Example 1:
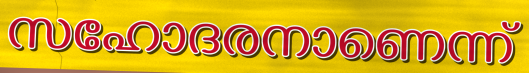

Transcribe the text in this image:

സഹോദരനാണെന്ന്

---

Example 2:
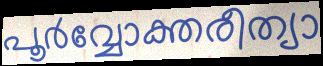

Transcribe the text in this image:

പൂർവ്വോക്തരീത്യാ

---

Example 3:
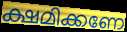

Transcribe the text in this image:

ക്ഷമിക്കണേ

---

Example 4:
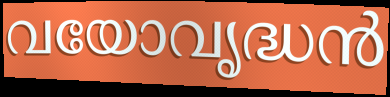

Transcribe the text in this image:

വയോവൃദ്ധൻ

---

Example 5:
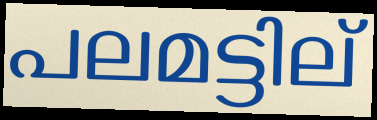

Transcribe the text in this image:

പലമട്ടില്